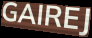
GAIREJ